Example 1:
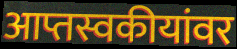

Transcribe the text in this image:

आप्तस्वकीयांवर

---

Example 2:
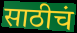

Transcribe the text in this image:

साठीचं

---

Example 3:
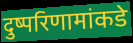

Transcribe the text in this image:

दुष्परिणामांकडे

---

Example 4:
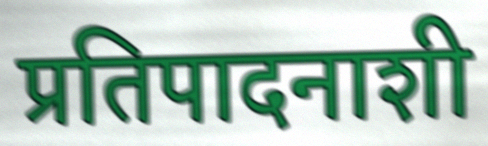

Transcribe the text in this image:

प्रतिपादनाशी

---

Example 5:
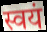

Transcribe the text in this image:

स्वयं